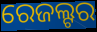
ରେଜଲ୍ଟର